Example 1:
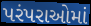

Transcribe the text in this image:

પરંપરાઓમાં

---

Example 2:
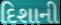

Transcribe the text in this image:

દિશાની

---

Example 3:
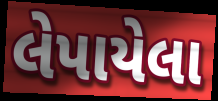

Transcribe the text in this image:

લેપાયેલા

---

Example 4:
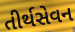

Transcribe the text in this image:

તીર્થસેવન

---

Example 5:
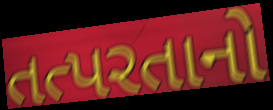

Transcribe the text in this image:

તત્પરતાનો